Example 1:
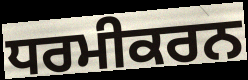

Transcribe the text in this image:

ਧਰਮੀਕਰਨ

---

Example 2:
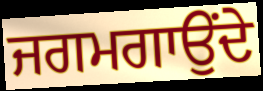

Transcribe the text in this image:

ਜਗਮਗਾਉਂਦੇ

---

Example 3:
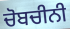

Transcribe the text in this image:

ਚੋਬਚੀਨੀ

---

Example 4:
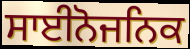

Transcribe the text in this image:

ਸਾਈਨੋਜਨਿਕ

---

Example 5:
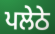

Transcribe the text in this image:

ਪਲੇਠੇ